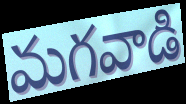
మగవాడి